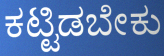
ಕಟ್ಟಿಡಬೇಕು